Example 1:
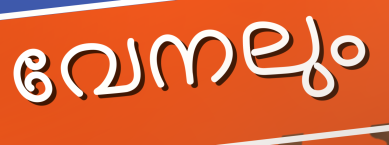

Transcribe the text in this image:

വേനലും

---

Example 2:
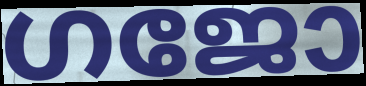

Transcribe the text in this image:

ഗജോ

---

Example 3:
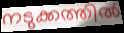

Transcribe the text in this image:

നടുക്കത്തിൽ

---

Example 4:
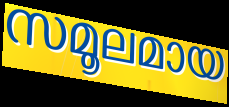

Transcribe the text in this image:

സമൂലമായ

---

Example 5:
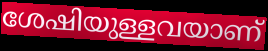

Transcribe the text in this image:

ശേഷിയുള്ളവയാണ്